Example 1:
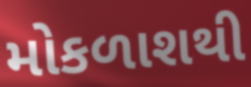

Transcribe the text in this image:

મોકળાશથી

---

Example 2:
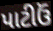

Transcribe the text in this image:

પાટીઉં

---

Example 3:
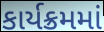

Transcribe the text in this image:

કાર્યક્રમમાં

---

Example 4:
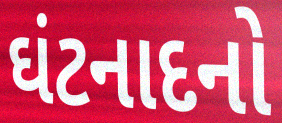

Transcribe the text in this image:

ઘંટનાદનો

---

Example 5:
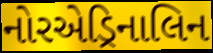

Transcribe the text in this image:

નોરએડ્રિનાલિન